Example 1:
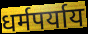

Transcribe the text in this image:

धर्मपर्याय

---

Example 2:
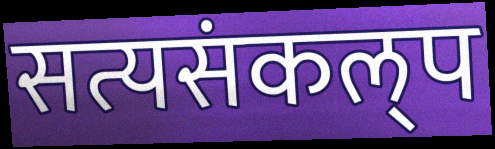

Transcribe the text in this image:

सत्यसंकल्प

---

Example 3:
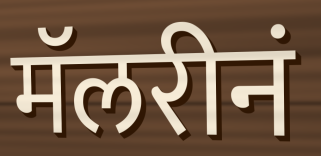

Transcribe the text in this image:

मॅलरीनं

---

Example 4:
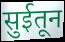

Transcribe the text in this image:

सुईतून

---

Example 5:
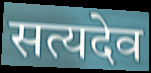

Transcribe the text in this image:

सत्यदेव